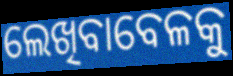
ଲେଖିବାବେଳକୁ